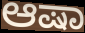
ಆಷಾ